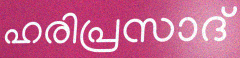
ഹരിപ്രസാദ്